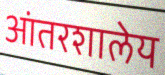
आंतरशालेय